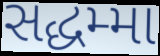
સદ્ધમ્મા